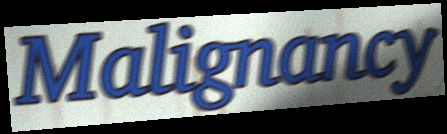
Malignancy